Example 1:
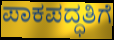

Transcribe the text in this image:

ಪಾಕಪದ್ಧತಿಗೆ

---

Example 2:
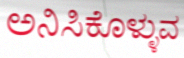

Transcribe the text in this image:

ಅನಿಸಿಕೊಳ್ಳುವ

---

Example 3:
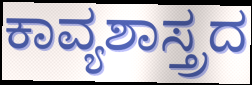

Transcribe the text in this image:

ಕಾವ್ಯಶಾಸ್ತ್ರದ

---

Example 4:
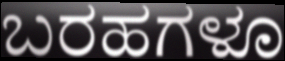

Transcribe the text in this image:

ಬರಹಗಳೂ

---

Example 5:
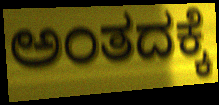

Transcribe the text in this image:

ಅಂತದಕ್ಕೆ